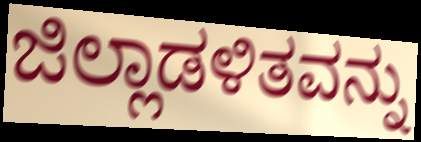
ಜಿಲ್ಲಾಡಳಿತವನ್ನು